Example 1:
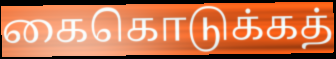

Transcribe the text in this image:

கைகொடுக்கத்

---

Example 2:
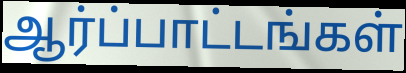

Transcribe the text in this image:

ஆர்ப்பாட்டங்கள்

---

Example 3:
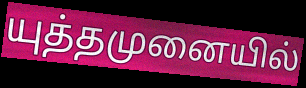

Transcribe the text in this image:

யுத்தமுனையில்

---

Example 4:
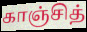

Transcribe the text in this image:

காஞ்சித்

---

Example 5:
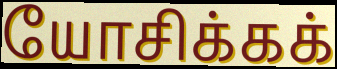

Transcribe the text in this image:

யோசிக்கக்